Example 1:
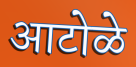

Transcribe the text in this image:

आटोळे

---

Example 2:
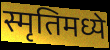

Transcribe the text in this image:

स्मृतिमध्ये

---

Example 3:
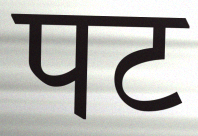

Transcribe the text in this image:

पट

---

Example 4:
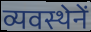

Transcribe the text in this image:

व्यवस्थेनें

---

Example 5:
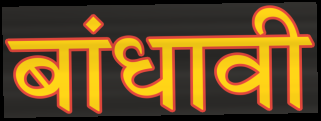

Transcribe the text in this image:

बांधावी